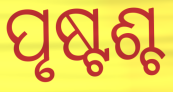
ପୃଷ୍ଟଶ୍ଚ